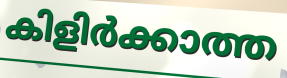
കിളിർക്കാത്ത